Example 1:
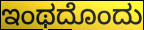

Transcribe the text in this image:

ಇಂಥದೊಂದು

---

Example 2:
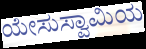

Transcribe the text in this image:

ಯೇಸುಸ್ವಾಮಿಯ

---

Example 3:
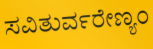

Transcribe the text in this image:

ಸವಿತುರ್ವರೇಣ್ಯಂ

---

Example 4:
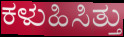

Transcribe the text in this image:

ಕಳುಹಿಸಿತ್ತು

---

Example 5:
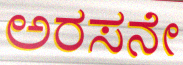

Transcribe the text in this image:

ಅರಸನೇ